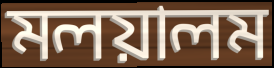
মলয়ালম